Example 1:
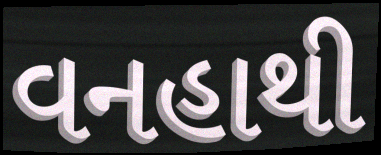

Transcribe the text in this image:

વનહાથી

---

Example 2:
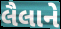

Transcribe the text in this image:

લૈલાને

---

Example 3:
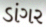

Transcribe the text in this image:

ડાંગર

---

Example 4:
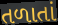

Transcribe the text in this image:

તળાતાં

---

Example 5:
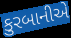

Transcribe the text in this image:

કુરબાનીએ